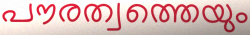
പൗരത്വത്തെയും